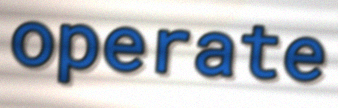
operate